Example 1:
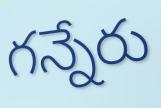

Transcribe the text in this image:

గన్నేరు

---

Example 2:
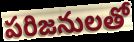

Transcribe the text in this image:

పరిజనులతో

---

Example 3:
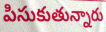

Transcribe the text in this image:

పిసుకుతున్నారు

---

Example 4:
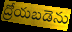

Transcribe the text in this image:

ద్రోయబడెను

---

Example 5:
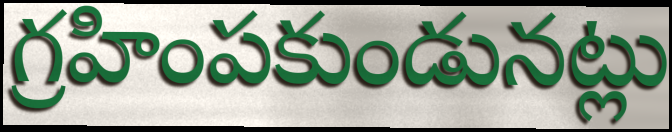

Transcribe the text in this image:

గ్రహింపకుండునట్లు